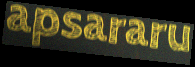
apsararu